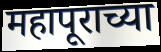
महापूराच्या